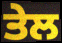
ਤੇਲ